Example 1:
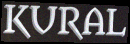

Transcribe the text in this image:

KURAL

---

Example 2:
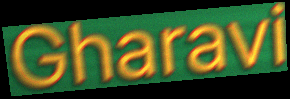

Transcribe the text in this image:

Gharavi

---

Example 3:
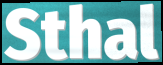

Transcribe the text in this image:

Sthal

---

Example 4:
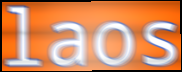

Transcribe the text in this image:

laos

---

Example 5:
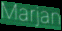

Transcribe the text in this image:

Marjan